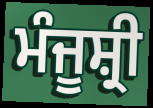
ਮੰਜੂਸ਼੍ਰੀ